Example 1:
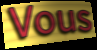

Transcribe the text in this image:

Vous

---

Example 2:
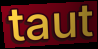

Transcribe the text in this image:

taut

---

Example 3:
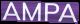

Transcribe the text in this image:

AMPA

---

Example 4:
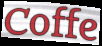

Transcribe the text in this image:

Coffe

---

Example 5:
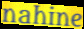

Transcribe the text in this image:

nahine